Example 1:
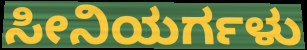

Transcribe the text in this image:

ಸೀನಿಯರ್ಗಳು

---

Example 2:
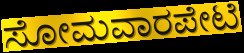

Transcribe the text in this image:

ಸೋಮವಾರಪೇಟೆ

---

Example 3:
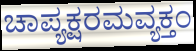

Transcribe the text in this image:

ಚಾಪ್ಯಕ್ಷರಮವ್ಯಕ್ತಂ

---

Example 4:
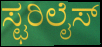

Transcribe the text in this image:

ಸ್ಟರಿಲೈಸ್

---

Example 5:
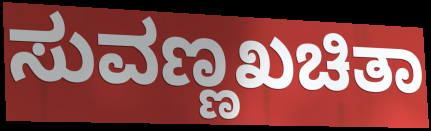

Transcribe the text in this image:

ಸುವಣ್ಣಖಚಿತಾ